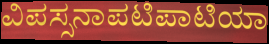
ವಿಪಸ್ಸನಾಪಟಿಪಾಟಿಯಾ